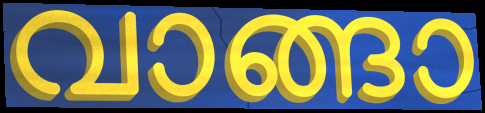
വാങ്ങാ